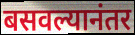
बसवल्यानंतर